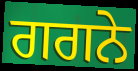
ਗਗਨੇ